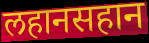
लहानसहान